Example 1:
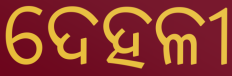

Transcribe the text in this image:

ଦେହଳୀ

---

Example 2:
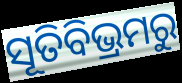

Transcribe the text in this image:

ସୂତିବିଭ୍ରମରୁ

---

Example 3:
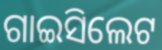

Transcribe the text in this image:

ଗାଇସିଲେଟ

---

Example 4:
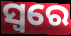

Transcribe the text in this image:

ସ୍ୱରେ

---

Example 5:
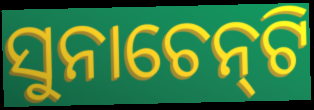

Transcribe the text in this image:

ସୁନାଚେନ୍‍ଟି